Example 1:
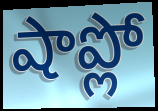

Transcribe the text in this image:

షాప్లో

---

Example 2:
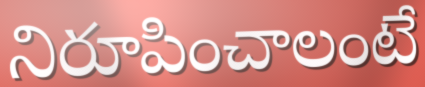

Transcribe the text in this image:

నిరూపించాలంటే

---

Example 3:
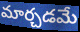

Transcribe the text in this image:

మార్చడమే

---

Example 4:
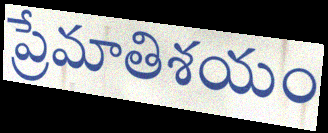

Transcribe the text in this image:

ప్రేమాతిశయం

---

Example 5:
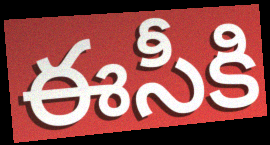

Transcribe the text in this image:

ఈసీకి